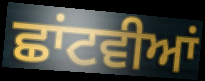
ਛਾਂਟਵੀਆਂ